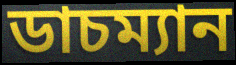
ডাচম্যান